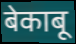
बेकाबू